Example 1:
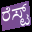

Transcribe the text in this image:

ರೆಸ್ಟ್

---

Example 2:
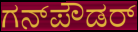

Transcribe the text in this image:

ಗನ್‌ಪೌಡರ್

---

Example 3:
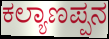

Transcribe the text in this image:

ಕಲ್ಯಾಣಪ್ಪನ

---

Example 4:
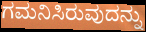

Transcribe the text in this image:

ಗಮನಿಸಿರುವುದನ್ನು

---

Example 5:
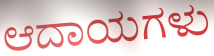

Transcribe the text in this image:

ಆದಾಯಗಳು